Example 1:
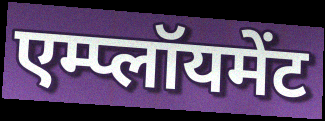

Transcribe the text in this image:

एम्प्लॉयमेंट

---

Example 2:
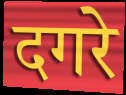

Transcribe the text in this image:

दगरे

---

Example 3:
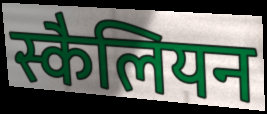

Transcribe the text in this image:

स्कैलियन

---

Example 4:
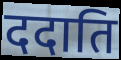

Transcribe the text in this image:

ददाति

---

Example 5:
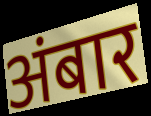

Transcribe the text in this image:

अंबार